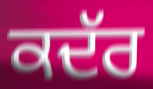
ਕਦੱਰ